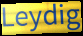
Leydig